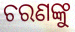
ଚରଣଙ୍କୁ